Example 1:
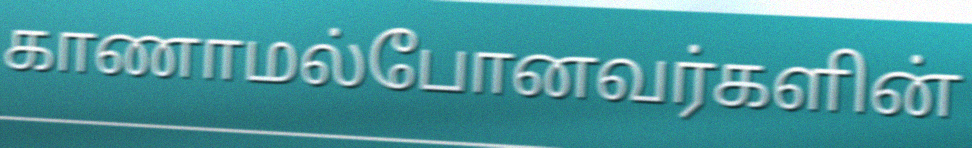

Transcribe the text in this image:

காணாமல்போனவர்களின்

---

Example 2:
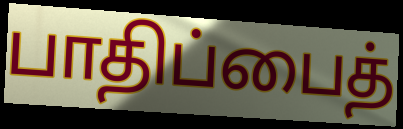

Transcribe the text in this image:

பாதிப்பைத்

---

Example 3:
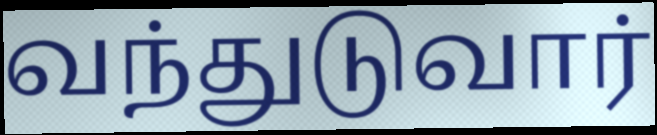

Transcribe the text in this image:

வந்துடுவார்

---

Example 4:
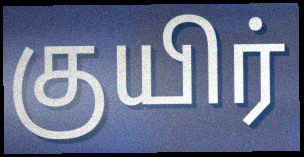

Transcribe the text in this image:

குயிர்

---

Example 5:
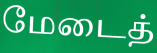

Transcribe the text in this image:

மேடைத்